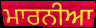
ਮਾਰਨੀਆ